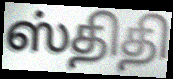
ஸ்திதி